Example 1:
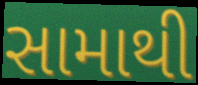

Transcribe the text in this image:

સામાથી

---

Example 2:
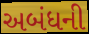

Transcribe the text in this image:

અબંધની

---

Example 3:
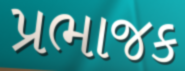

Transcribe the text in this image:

પ્રભાજક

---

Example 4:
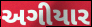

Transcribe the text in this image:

અગીયાર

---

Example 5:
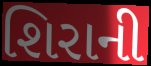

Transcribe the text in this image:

શિરાની